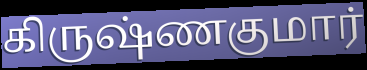
கிருஷ்ணகுமார்